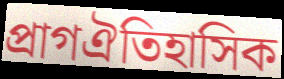
প্ৰাগঐতিহাসিক